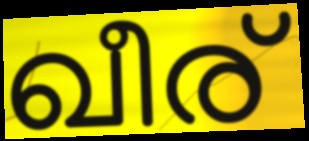
ഖീര്